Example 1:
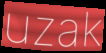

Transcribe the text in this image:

uzak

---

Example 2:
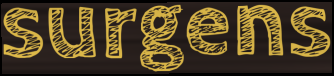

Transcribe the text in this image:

surgens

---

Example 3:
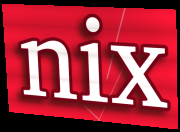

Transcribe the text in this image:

nix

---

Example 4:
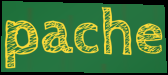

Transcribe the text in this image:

pache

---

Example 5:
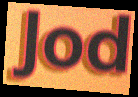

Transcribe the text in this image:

Jod